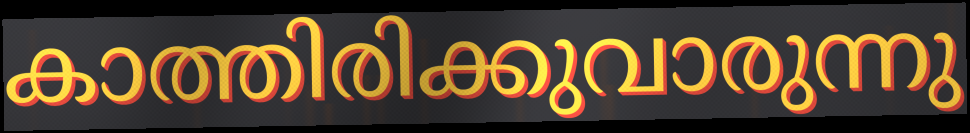
കാത്തിരിക്കുവാരുന്നു